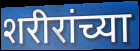
शरीरांच्या